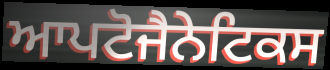
ਆਪਟੋਜੈਨੇਟਿਕਸ